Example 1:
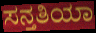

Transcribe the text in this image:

ಸನ್ತತಿಯಾ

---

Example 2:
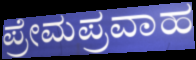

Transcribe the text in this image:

ಪ್ರೇಮಪ್ರವಾಹ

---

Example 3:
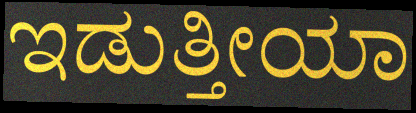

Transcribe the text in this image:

ಇಡುತ್ತೀಯಾ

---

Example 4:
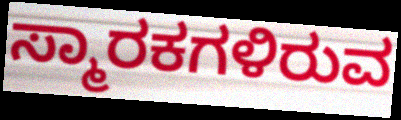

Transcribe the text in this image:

ಸ್ಮಾರಕಗಳಿರುವ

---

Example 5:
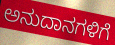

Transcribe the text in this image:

ಅನುದಾನಗಳಿಗೆ